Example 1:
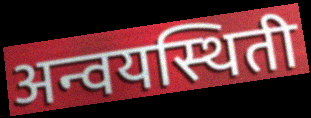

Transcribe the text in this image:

अन्वयस्थिती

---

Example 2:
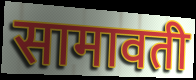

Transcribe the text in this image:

सामावती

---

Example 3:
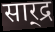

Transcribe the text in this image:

सार्द्र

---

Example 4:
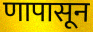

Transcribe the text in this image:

णापासून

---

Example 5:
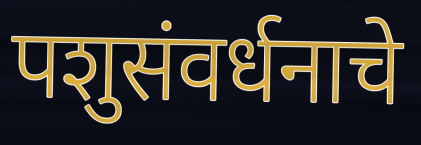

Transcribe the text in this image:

पशुसंवर्धनाचे